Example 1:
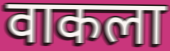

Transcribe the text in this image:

वाकला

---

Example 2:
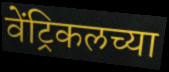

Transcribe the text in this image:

वेंट्रिकलच्या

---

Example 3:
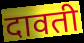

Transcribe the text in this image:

दावती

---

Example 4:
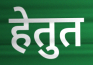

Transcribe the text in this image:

हेतुत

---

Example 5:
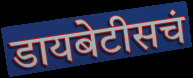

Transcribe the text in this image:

डायबेटीसचं